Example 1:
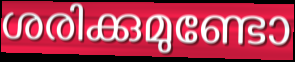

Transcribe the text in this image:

ശരിക്കുമുണ്ടോ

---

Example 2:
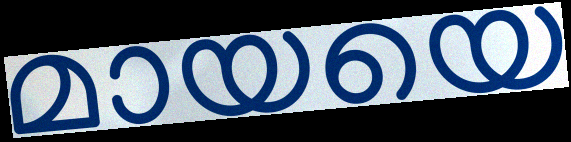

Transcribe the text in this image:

മായയെ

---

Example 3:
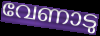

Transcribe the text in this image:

വേണാടു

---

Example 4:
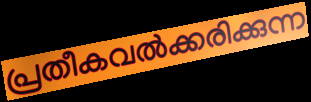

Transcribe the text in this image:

പ്രതീകവൽക്കരിക്കുന്ന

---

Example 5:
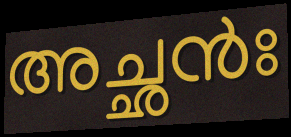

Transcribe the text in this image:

അച്ഛൻഃ